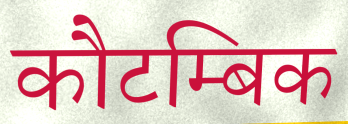
कौटम्बिक